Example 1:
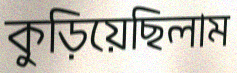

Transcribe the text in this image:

কুড়িয়েছিলাম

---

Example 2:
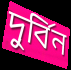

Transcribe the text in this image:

দুর্বিন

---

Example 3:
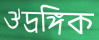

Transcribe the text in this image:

ঔদ্রঙ্গিক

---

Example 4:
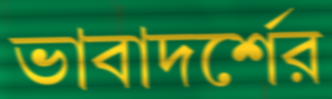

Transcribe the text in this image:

ভাবাদর্শের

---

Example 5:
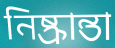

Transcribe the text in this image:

নিষ্ক্রান্তা